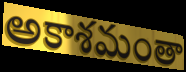
అకాశమంతా